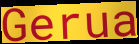
Gerua